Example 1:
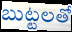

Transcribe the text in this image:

బుట్టలతో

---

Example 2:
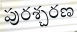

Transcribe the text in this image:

పురశ్చరణ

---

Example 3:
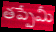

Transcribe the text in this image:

తప్పేమీ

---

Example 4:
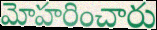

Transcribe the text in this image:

మోహరించారు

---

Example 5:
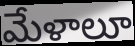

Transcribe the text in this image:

మేళాలూ